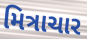
મિત્રાચાર